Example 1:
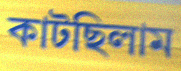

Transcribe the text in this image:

কাটছিলাম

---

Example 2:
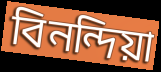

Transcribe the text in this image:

বিনন্দিয়া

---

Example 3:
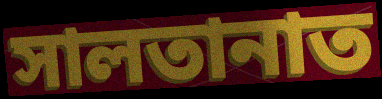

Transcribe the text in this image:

সালতানাত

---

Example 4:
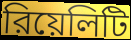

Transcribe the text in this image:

রিয়েলিটি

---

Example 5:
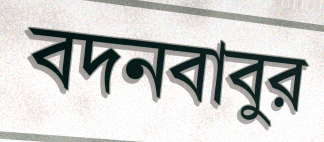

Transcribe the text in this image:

বদনবাবুর